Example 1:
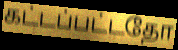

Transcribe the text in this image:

கட்டப்பட்டதோ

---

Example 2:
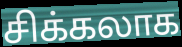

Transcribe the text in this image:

சிக்கலாக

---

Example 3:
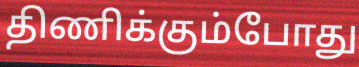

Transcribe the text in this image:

திணிக்கும்போது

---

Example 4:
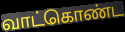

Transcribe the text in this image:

வாட்கொண்ட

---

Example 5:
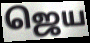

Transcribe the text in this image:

ஜெய